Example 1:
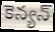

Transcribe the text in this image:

కెన్యన్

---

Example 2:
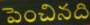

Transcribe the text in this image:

పెంచినది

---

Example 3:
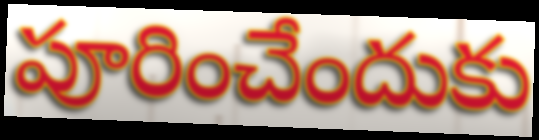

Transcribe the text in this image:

పూరించేందుకు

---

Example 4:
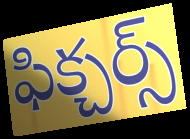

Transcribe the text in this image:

ఫిక్చర్స్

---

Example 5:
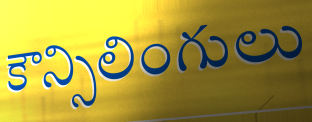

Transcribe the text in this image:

కౌన్సిలింగులు